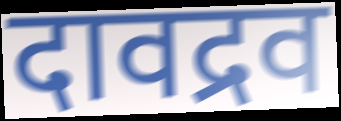
दावद्रव